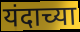
यंदाच्या